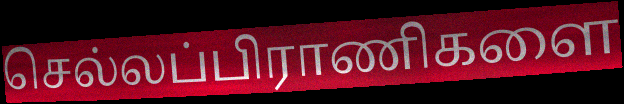
செல்லப்பிராணிகளை